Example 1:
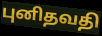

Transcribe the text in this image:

புனிதவதி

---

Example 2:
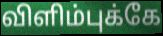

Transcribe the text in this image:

விளிம்புக்கே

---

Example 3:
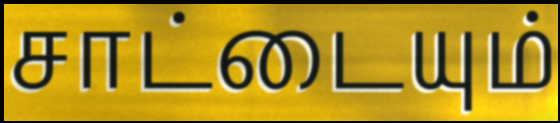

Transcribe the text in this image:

சாட்டையும்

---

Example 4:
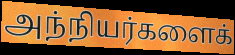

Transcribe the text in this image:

அந்நியர்களைக்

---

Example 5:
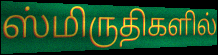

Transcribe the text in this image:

ஸ்மிருதிகளில்